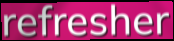
refresher